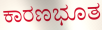
ಕಾರಣಭೂತ